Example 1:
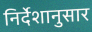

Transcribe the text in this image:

निर्देशानुसार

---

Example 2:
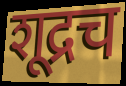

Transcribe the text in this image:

शूद्रच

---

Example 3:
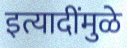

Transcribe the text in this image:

इत्यादींमुळे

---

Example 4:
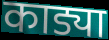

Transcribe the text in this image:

काड्या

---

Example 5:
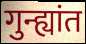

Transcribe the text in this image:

गुन्ह्यांत